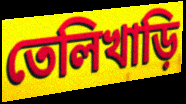
তেলিখাড়ি